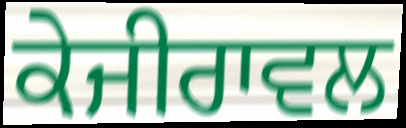
ਕੇਜੀਰਾਵਲ